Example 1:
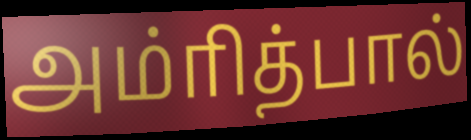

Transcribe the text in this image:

அம்ரித்பால்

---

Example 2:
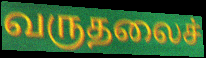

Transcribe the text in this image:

வருதலைச்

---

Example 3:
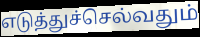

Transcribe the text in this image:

எடுத்துச்செல்வதும்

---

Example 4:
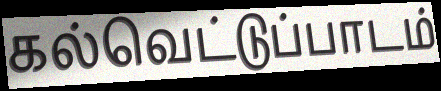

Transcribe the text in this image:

கல்வெட்டுப்பாடம்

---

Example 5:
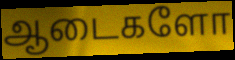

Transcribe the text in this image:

ஆடைகளோ